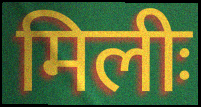
मिलीः